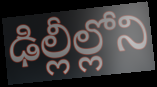
ఢిల్లీల్లోని